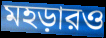
মহড়ারও